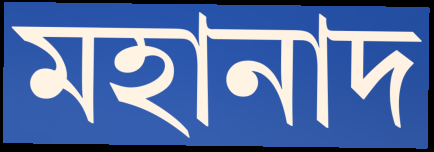
মহানাদ